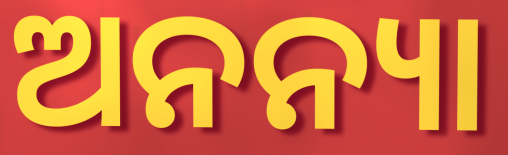
ଅନନ୍ୟା